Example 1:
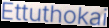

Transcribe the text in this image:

Ettuthokai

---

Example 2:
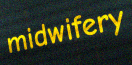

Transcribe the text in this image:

midwifery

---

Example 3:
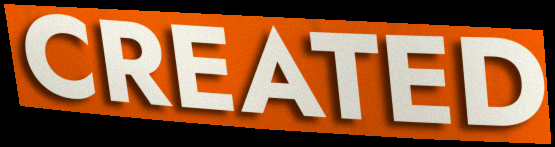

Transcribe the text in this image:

CREATED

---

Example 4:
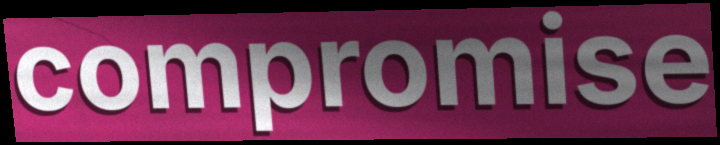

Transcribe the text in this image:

compromise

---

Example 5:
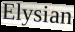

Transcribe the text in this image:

Elysian